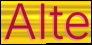
Alte